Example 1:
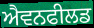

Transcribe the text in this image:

ਐਵਨਫੀਲਡ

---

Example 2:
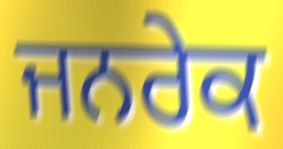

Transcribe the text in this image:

ਜਨਰੇਕ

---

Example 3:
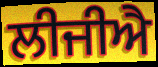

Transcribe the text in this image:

ਲੀਜੀਐ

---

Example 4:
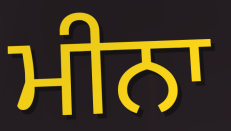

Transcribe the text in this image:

ਮੀਨਾ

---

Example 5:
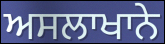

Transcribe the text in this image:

ਅਸਲਾਖਾਨੇ